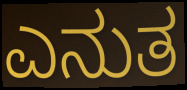
ಎನುತ